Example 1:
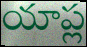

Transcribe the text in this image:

యాప్ల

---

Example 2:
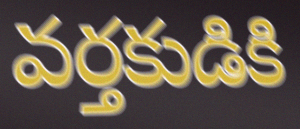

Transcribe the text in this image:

వర్తకుడికి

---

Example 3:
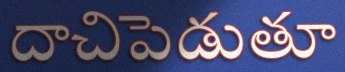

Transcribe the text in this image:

దాచిపెడుతూ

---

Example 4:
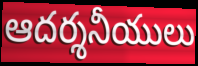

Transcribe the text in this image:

ఆదర్శనీయులు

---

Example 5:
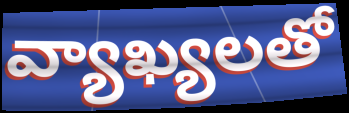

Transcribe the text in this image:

వ్యాఖ్యలతో